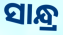
ସାନ୍ଧ୍ର